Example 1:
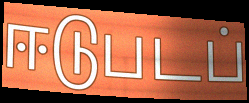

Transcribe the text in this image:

ஈடுபடப்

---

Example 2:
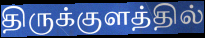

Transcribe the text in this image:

திருக்குளத்தில்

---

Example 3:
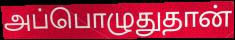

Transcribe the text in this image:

அப்பொழுதுதான்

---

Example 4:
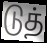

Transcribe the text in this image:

டுத்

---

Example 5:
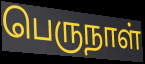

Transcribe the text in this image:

பெருநாள்